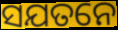
ସଯତନେ